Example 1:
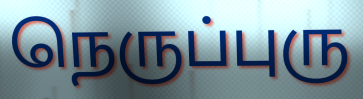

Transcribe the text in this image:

நெருப்புரு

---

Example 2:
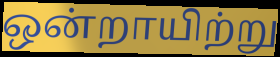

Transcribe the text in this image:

ஒன்றாயிற்று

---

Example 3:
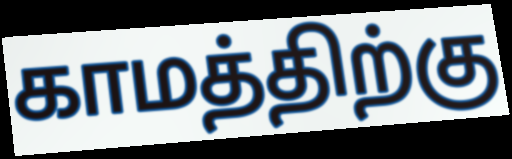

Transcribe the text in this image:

காமத்திற்கு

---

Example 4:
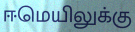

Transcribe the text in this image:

ஈமெயிலுக்கு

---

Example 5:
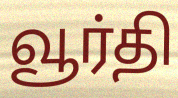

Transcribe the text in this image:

வூர்தி